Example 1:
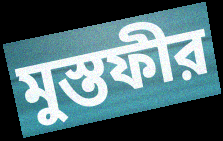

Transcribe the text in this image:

মুস্তফীর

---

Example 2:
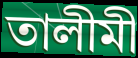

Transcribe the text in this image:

তালীমী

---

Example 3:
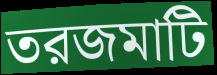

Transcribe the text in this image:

তরজমাটি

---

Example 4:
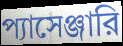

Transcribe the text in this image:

প্যাসেঞ্জারি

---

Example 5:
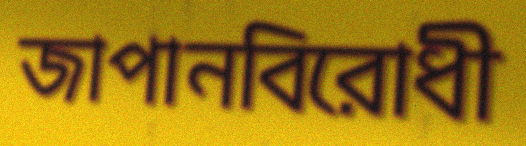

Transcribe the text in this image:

জাপানবিরোধী